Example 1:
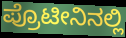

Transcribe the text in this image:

ಪ್ರೊಟೀನಿನಲ್ಲಿ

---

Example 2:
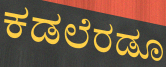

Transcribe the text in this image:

ಕಡಲೆರಡೂ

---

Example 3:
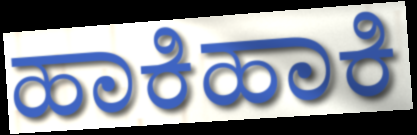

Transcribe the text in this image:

ಹಾಕಿಹಾಕಿ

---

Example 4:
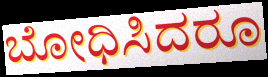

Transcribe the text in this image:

ಬೋಧಿಸಿದರೂ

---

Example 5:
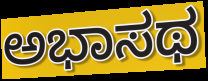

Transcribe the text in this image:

ಅಭಾಸಥ